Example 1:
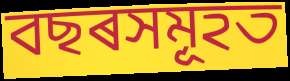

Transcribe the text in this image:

বছৰসমূহত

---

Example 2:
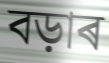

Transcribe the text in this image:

বড়াৰ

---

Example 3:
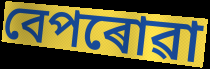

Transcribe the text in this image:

বেপৰোৱা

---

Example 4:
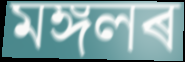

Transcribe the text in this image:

মঙ্গলৰ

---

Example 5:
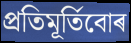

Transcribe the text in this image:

প্ৰতিমূৰ্তিবোৰ